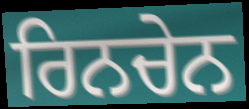
ਰਿਨਚੇਨ